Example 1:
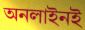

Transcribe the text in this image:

অনলাইনই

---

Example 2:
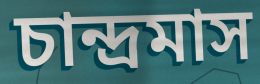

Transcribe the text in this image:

চান্দ্রমাস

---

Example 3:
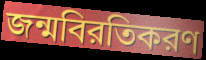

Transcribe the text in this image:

জন্মবিরতিকরণ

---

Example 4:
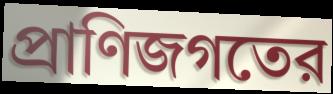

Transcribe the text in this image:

প্রাণিজগতের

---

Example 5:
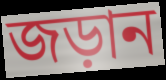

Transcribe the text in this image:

জড়ান